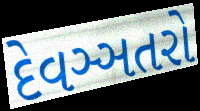
દેવઞ્ઞતરો